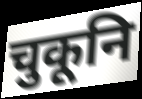
चुकूनि